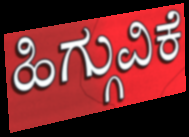
ಹಿಗ್ಗುವಿಕೆ